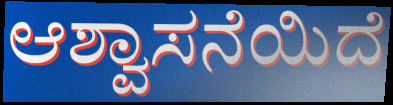
ಆಶ್ವಾಸನೆಯಿದೆ